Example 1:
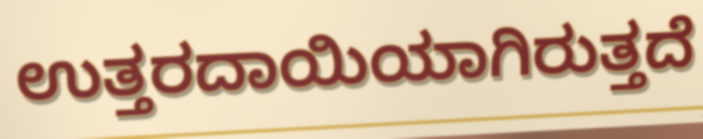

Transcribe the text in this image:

ಉತ್ತರದಾಯಿಯಾಗಿರುತ್ತದೆ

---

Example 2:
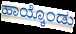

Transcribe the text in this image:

ಹಾಯ್ಕೊಂಡು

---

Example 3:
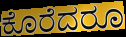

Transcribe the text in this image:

ಕೊರೆದರೂ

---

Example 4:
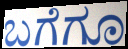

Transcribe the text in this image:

ಬಗೆಗೂ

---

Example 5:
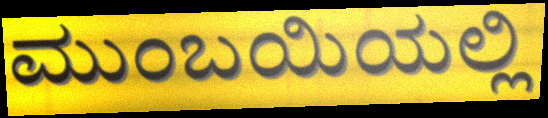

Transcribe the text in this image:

ಮುಂಬಯಿಯಲ್ಲಿ